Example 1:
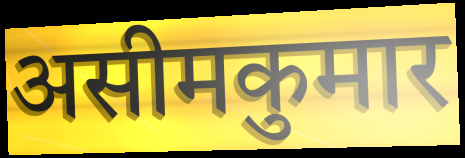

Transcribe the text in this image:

असीमकुमार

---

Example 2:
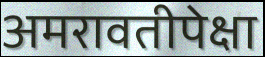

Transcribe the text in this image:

अमरावतीपेक्षा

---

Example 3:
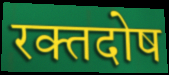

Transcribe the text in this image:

रक्‍तदोष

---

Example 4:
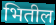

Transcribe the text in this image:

भितील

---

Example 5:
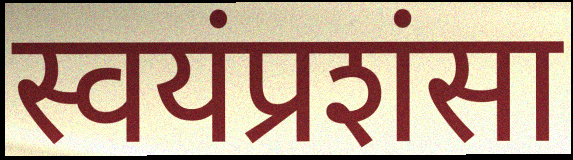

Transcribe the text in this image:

स्वयंप्रशंसा